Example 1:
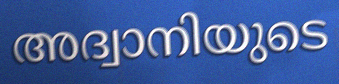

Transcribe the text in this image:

അദ്വാനിയുടെ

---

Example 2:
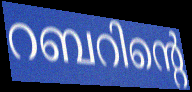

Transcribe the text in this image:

റബറിന്റെ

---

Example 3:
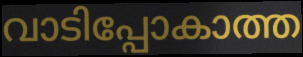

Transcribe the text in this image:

വാടിപ്പോകാത്ത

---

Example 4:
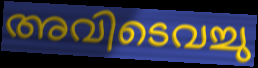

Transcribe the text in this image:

അവിടെവച്ചു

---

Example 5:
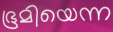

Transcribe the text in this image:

ഭൂമിയെന്ന